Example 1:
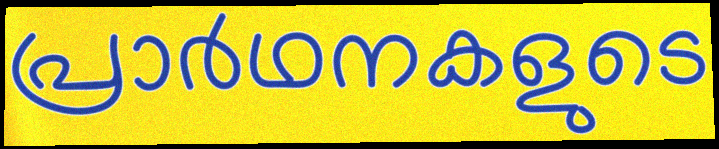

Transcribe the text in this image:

പ്രാർഥനകളുടെ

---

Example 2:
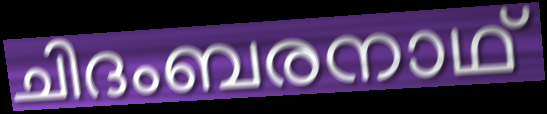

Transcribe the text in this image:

ചിദംബരനാഥ്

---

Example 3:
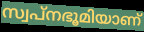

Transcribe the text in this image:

സ്വപ്നഭൂമിയാണ്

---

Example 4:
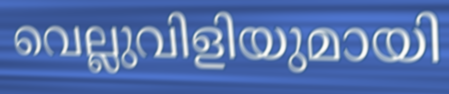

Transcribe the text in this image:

വെല്ലുവിളിയുമായി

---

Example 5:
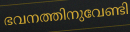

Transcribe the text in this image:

ഭവനത്തിനുവേണ്ടി